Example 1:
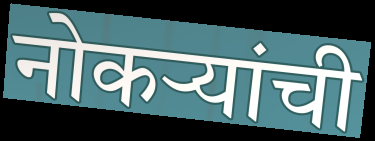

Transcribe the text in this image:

नोकऱ्यांची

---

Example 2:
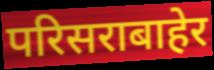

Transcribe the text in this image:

परिसराबाहेर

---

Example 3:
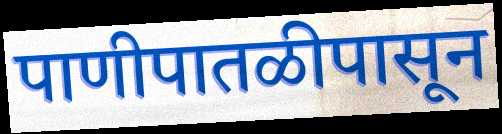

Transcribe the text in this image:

पाणीपातळीपासून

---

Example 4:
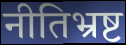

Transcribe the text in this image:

नीतिभ्रष्ट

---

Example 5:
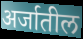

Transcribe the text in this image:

अर्जातील